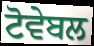
ਟੋਵੇਬਲ